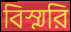
বিস্মরি